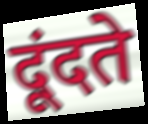
दूंदते